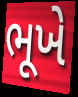
ભૂખે